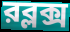
রব্লক্স